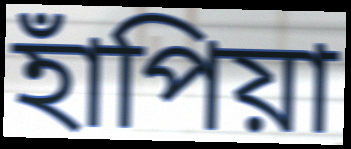
হাঁপিয়া